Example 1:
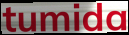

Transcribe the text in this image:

tumida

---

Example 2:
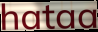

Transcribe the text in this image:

hataa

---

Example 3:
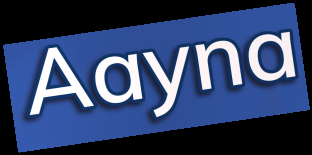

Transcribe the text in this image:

Aayna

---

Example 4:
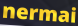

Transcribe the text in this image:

nermai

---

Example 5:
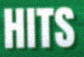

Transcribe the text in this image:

HITS